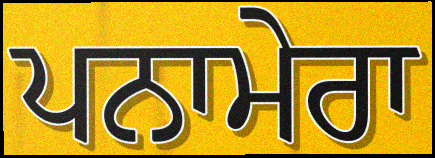
ਪਨਾਮੇਰਾ